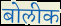
बोलीक